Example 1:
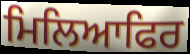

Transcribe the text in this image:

ਮਿਲਿਆਫਿਰ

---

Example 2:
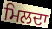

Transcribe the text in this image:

ਮਿਲਦਾ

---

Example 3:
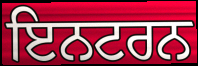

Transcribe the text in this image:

ਇਨਟਰਨ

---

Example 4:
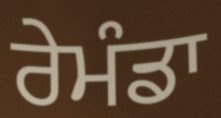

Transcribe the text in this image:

ਰੇਮੰਡਾ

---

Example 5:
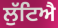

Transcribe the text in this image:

ਲੁੱਟਿਐ